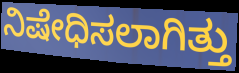
ನಿಷೇಧಿಸಲಾಗಿತ್ತು